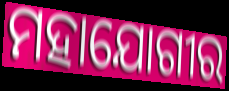
ମହାଯୋଗୀର